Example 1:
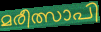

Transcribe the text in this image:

മരീത്സാപി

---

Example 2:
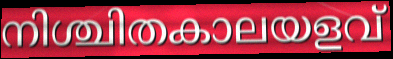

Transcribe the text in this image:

നിശ്ചിതകാലയളവ്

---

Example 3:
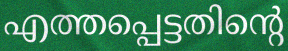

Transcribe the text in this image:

എത്തപ്പെട്ടതിന്റെ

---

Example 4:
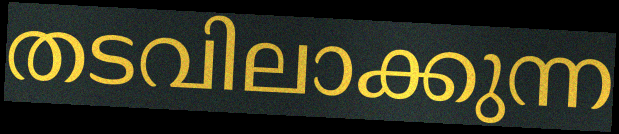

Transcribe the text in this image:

തടവിലാക്കുന്ന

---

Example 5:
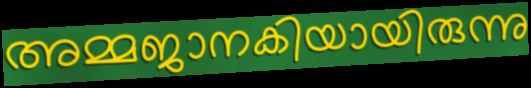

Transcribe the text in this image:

അമ്മജാനകിയായിരുന്നു